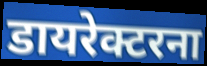
डायरेक्टरना